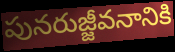
పునరుజ్జీవనానికి